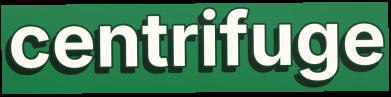
centrifuge